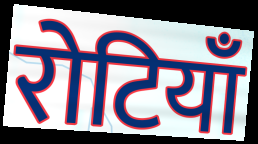
रोटियाँ